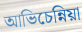
আভিচেন্নিয়া